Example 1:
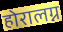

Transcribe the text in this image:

होरालग्न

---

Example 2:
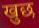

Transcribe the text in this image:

खुछ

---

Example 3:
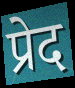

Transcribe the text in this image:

प्रेद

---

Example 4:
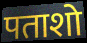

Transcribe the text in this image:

पताशो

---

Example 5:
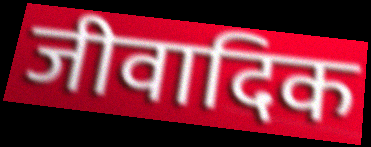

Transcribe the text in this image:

जीवादिक